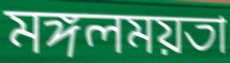
মঙ্গলময়তা